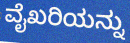
ವೈಖರಿಯನ್ನು